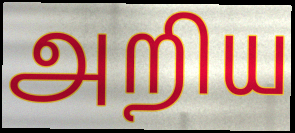
அறிய